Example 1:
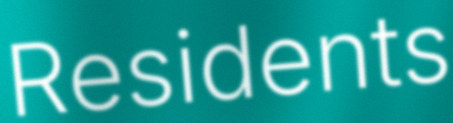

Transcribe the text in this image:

Residents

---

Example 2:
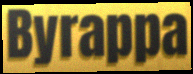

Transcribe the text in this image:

Byrappa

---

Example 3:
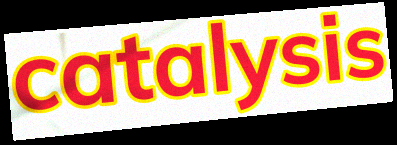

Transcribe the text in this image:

catalysis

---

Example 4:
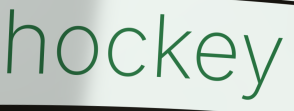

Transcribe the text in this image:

hockey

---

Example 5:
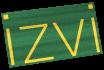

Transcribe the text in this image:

izvi